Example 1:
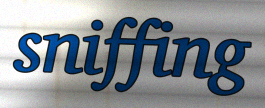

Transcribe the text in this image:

sniffing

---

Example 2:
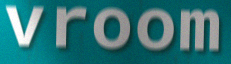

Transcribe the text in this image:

vroom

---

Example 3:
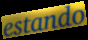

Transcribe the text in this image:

estando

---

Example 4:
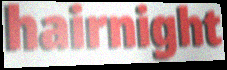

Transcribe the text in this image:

hairnight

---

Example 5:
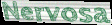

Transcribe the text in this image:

Nervosa